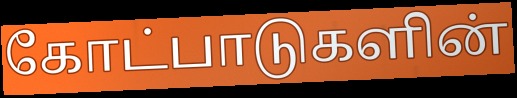
கோட்பாடுகளின்